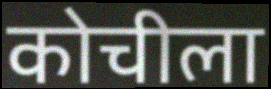
कोचीला